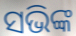
ସଭିଙ୍କ